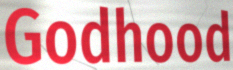
Godhood